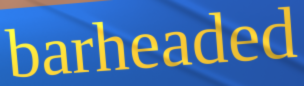
barheaded